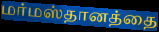
மர்மஸ்தானத்தை